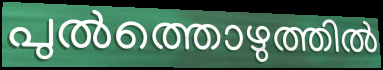
പുൽത്തൊഴുത്തിൽ